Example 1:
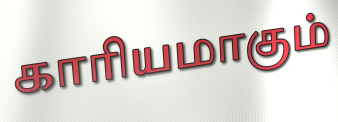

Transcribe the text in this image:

காரியமாகும்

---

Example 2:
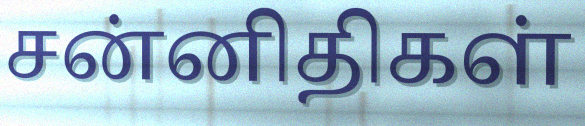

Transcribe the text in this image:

சன்னிதிகள்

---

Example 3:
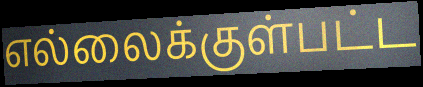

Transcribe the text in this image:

எல்லைக்குள்பட்ட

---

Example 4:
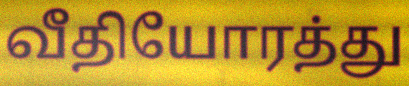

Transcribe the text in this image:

வீதியோரத்து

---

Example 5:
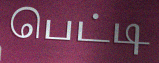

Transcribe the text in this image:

பெட்டி